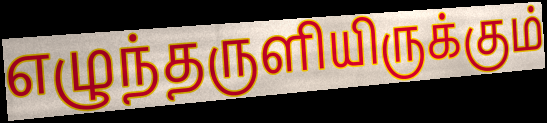
எழுந்தருளியிருக்கும்